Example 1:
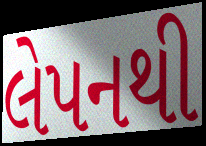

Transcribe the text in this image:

લેપનથી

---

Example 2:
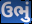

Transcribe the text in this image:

ઉભું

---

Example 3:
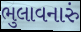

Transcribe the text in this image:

ભુલાવનારું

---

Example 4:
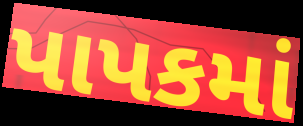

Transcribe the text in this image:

પાપકમાં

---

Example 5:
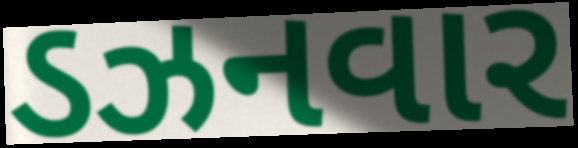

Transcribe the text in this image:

ડઝનવાર